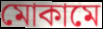
মোকামে